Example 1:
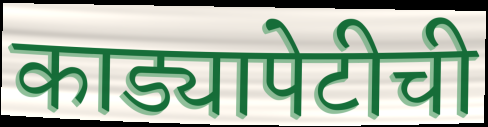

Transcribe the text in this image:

काड्यापेटीची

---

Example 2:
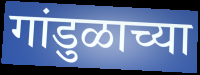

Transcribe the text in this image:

गांडुळाच्या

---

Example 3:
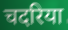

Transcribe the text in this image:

चदरिया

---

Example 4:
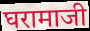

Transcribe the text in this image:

घरामाजी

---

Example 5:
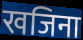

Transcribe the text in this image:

खजिना